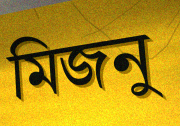
মিজনু